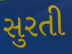
સુરતી